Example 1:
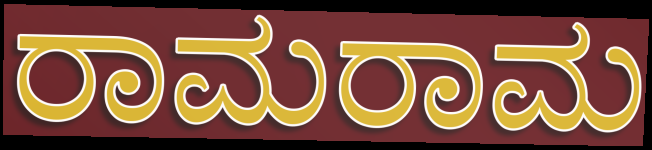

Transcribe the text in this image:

ರಾಮರಾಮ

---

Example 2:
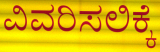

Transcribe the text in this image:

ವಿವರಿಸಲಿಕ್ಕೆ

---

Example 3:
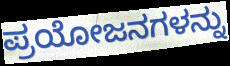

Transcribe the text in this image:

ಪ್ರಯೋಜನಗಳನ್ನು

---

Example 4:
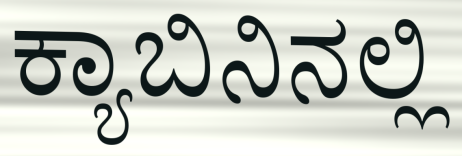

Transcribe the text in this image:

ಕ್ಯಾಬಿನಿನಲ್ಲಿ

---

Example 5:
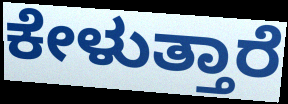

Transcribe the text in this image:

ಕೇಳುತ್ತಾರೆ